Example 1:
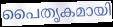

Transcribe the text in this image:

പൈതൃകമായി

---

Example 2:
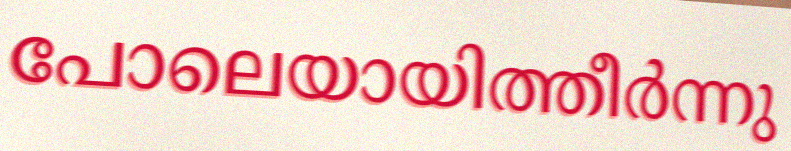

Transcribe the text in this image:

പോലെയായിത്തീർന്നു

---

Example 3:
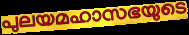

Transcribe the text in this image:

പുലയമഹാസഭയുടെ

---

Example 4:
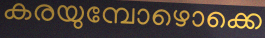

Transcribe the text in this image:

കരയുമ്പോഴൊക്കെ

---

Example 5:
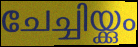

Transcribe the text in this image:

ചേച്ചിയ്ക്കും